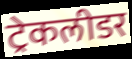
ट्रेकलीडर